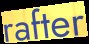
rafter